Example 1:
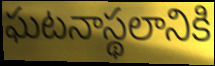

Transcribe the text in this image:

ఘటనాస్థలానికి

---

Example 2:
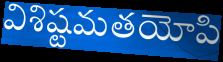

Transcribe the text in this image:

విశిష్టమతయోపి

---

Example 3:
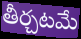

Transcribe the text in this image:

తీర్చటమే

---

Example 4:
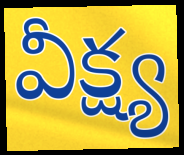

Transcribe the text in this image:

వీక్ష్య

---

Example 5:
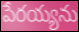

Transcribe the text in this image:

పేరయ్యను